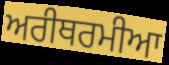
ਅਰੀਥਰਮੀਆ